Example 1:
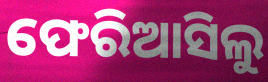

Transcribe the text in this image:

ଫେରିଆସିଲୁ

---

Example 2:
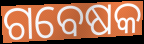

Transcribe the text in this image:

ଗବେଷକ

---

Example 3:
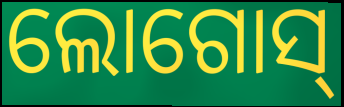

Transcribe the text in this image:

ଲୋଗୋସ୍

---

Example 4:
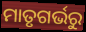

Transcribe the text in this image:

ମାତୃଗର୍ଭରୁ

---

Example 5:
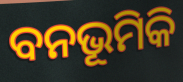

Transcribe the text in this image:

ବନଭୂମିକି